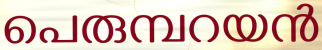
പെരുമ്പറയൻ